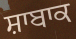
ਸ਼ਾਬਾਕ